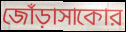
জোঁড়াসাকোর